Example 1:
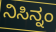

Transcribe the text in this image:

ನಿಸಿನ್ನಂ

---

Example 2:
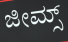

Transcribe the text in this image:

ಜೀಮ್ಸ್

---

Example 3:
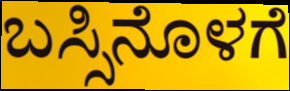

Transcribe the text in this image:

ಬಸ್ಸಿನೊಳಗೆ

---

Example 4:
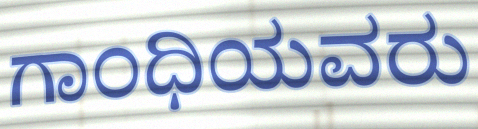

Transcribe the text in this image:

ಗಾಂಧಿಯವರು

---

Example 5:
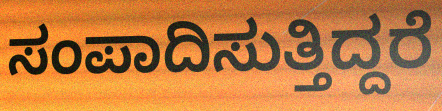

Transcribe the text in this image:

ಸಂಪಾದಿಸುತ್ತಿದ್ದರೆ